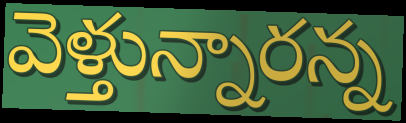
వెళ్తున్నారన్న